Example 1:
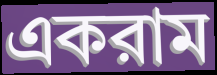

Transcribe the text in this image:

একরাম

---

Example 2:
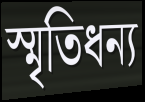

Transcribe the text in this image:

স্মৃতিধন্য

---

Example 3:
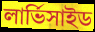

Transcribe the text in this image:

লার্ভিসাইড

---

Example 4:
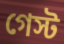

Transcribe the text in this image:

গেস্ট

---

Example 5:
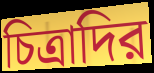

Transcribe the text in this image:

চিত্রাদির